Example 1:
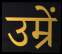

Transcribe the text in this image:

उम्रें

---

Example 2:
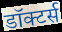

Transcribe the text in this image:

डॉक्टर्स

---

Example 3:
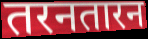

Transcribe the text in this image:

तरनतारन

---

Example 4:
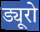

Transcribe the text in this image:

ड्यूरो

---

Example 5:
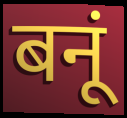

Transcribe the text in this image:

बनूं